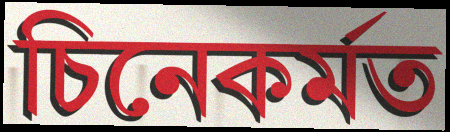
চিনেকৰ্মত